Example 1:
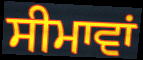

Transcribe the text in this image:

ਸੀਮਾਵਾਂ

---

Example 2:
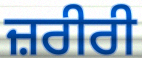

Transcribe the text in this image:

ਜ਼ਰੀਰੀ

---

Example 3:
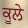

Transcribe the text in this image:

ਕੂਲੇ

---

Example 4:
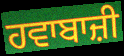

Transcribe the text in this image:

ਹਵਾਬਾਜ਼ੀ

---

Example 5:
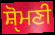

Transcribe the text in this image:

ਸ਼ੑੋਮਣੀ